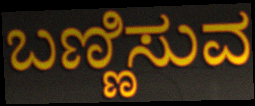
ಬಣ್ಣಿಸುವ